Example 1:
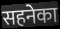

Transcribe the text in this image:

सहनेका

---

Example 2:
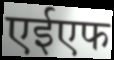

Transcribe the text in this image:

एईएफ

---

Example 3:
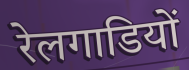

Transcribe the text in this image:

रेलगाडियों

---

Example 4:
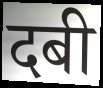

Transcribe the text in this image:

दबी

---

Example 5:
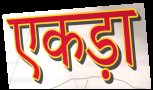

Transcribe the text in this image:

एकड़ा